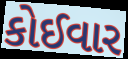
કોઈવાર